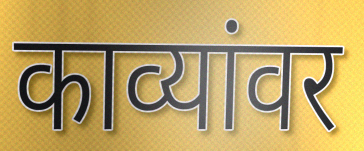
काव्यांवर